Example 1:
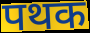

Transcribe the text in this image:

पथक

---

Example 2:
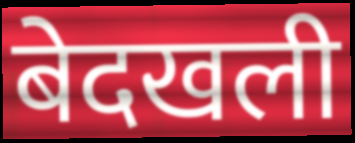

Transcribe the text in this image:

बेदखली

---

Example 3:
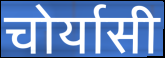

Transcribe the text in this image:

चोर्यासी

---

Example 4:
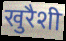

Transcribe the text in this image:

खुरैशी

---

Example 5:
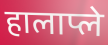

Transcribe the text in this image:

हालाप्ले